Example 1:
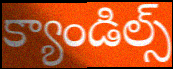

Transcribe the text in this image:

క్యాండిల్స్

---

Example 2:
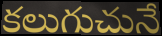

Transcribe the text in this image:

కలుగుచునే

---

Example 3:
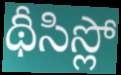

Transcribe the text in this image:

థీసిస్లో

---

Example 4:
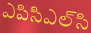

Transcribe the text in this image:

ఎపిసిఎల్‌సి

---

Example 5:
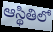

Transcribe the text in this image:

ఆస్థితిలో